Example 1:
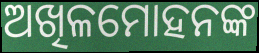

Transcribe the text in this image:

ଅଖିଳମୋହନଙ୍କ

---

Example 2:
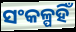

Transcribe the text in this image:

ସଂକଳ୍ପହିଁ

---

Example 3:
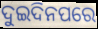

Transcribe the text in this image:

ଦୁଇଦିନପରେ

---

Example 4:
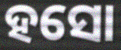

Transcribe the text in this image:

ହସୋ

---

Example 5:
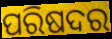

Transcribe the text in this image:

ପରିଷଦର